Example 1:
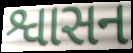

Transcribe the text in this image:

શ્વાસન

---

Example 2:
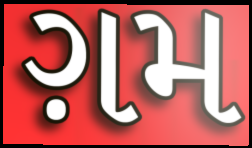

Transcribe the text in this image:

ગ઼મ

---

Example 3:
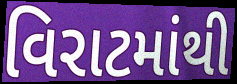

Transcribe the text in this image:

વિરાટમાંથી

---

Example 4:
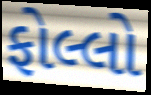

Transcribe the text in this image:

ફોલ્લો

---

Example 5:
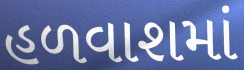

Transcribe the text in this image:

હળવાશમાં